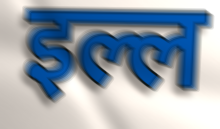
इल्ल